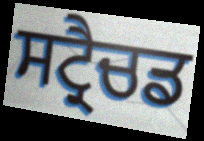
ਸਟ੍ਰੈਚਡ